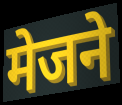
मेजने